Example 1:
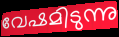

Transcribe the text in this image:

വേഷമിടുന്നു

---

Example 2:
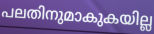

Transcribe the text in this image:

പലതിനുമാകുകയില്ല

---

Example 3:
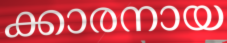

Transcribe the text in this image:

ക്കാരനായ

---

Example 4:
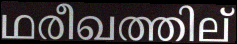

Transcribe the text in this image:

ഥരീഖത്തില്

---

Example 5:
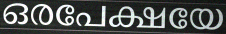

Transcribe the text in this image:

ഒരപേക്ഷയേ